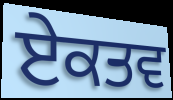
ਏਕਤਵ